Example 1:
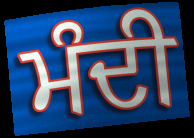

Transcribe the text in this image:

ਮੰਦੀ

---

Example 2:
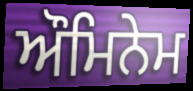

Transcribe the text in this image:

ਔਮਿਨੇਮ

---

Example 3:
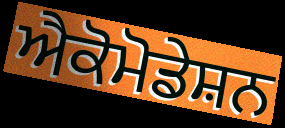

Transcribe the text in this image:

ਐਕੋਮੋਡੇਸ਼ਨ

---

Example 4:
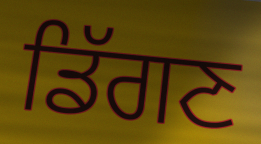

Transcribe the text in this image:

ਡਿੱਗਣ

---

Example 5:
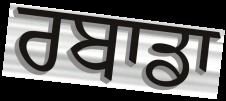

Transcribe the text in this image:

ਰਬਾਡਾ